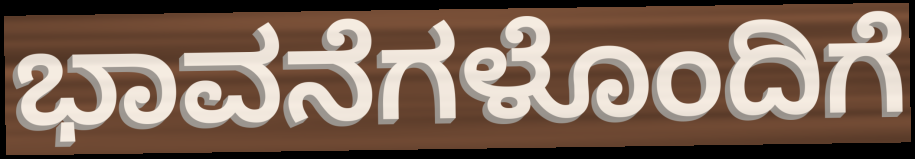
ಭಾವನೆಗಳೊಂದಿಗೆ